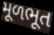
મૂળભૂત